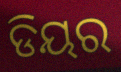
ଡିୟର